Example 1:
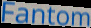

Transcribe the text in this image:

Fantom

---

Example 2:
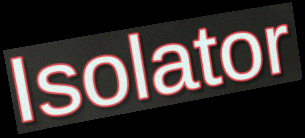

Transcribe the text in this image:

Isolator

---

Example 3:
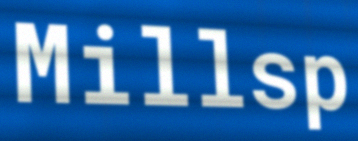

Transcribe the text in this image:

Millsp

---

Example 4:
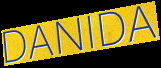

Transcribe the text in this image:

DANIDA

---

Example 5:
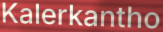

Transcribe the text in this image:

Kalerkantho